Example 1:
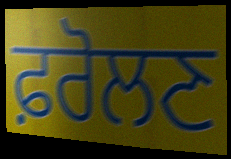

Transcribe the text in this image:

ਫ਼ਰੋਲਣ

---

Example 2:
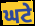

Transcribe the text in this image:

ਘਟੇ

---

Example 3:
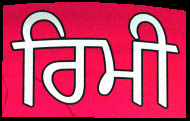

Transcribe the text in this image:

ਰਿਮੀ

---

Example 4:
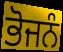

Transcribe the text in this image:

ਭੋਜਨੰ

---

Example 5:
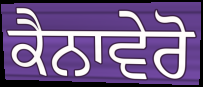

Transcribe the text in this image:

ਕੈਨਾਵੇਰੋ